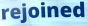
rejoined